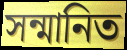
সন্মানিত